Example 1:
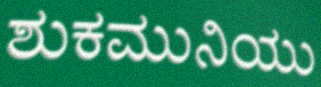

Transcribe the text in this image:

ಶುಕಮುನಿಯು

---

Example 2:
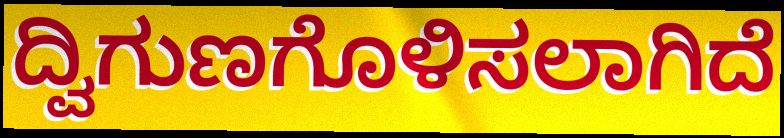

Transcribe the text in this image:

ದ್ವಿಗುಣಗೊಳಿಸಲಾಗಿದೆ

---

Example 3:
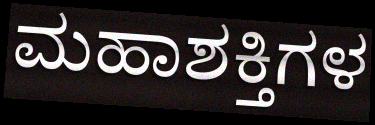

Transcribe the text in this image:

ಮಹಾಶಕ್ತಿಗಳ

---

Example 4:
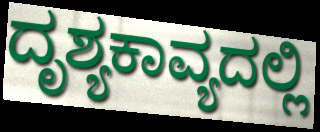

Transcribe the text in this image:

ದೃಶ್ಯಕಾವ್ಯದಲ್ಲಿ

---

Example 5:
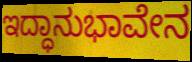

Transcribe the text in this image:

ಇದ್ಧಾನುಭಾವೇನ